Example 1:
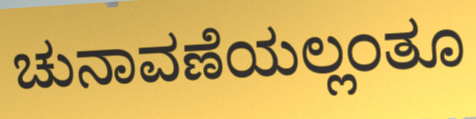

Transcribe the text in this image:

ಚುನಾವಣೆಯಲ್ಲಂತೂ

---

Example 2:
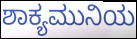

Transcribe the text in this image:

ಶಾಕ್ಯಮುನಿಯ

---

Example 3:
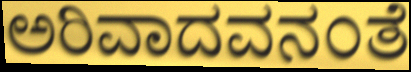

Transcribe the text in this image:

ಅರಿವಾದವನಂತೆ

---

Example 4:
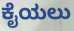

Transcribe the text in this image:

ಕೈಯಲು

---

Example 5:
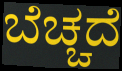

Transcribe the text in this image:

ಬೆಚ್ಚದೆ